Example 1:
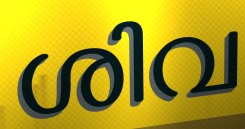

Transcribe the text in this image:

ശിവ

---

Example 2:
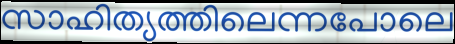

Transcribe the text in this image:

സാഹിത്യത്തിലെന്നപോലെ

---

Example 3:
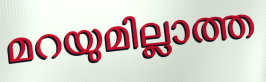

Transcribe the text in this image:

മറയുമില്ലാത്ത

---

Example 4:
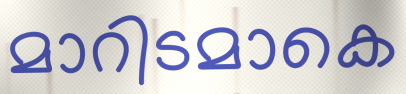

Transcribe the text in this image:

മാറിടമാകെ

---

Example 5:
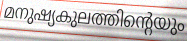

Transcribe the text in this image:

മനുഷ്യകുലത്തിന്റെയും